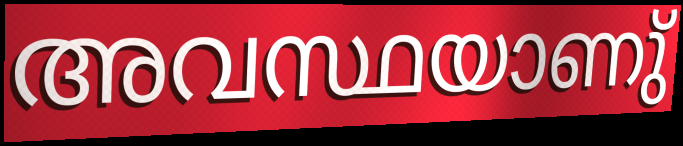
അവസ്ഥയാണു്